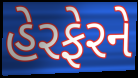
હેરફેરને